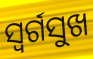
ସ୍ୱର୍ଗସୁଖ